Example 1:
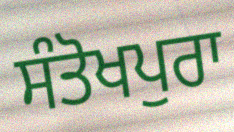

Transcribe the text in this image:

ਸੰਤੋਖਪੁਰਾ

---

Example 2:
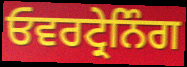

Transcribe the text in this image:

ਓਵਰਟ੍ਰੇਨਿੰਗ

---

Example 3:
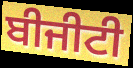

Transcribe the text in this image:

ਬੀਜੀਟੀ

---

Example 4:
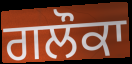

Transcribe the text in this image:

ਗਲੌਕਾ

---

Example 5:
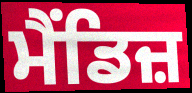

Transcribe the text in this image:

ਮੈਂਡਿਜ਼